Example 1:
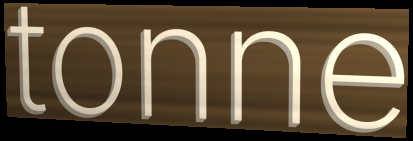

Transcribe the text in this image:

tonne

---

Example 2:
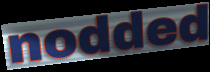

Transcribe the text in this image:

nodded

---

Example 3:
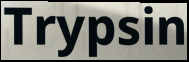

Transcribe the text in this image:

Trypsin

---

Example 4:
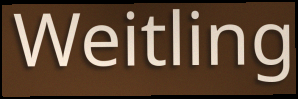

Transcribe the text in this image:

Weitling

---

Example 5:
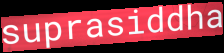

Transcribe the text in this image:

suprasiddha